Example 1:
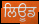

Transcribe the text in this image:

ਲਿਊਡ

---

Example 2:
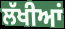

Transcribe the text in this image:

ਲੱਖੀਆਂ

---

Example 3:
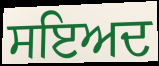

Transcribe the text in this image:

ਸਇਅਦ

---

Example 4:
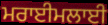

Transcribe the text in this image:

ਮਰਾਈਮਲਾਈ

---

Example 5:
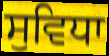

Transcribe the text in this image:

ਸੁਵਿਧਾ